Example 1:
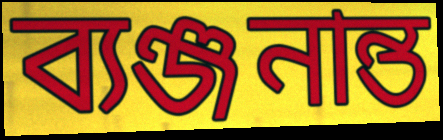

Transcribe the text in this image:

ব্যঞ্জনান্ত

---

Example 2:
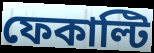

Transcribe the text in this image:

ফেকাল্টি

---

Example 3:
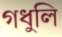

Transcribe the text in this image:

গধুলি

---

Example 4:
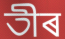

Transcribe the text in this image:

তীৰ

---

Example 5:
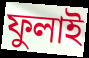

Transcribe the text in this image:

ফুলাই